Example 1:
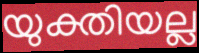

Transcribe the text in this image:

യുക്തിയല്ല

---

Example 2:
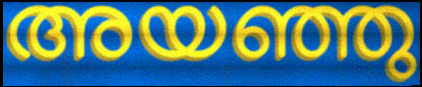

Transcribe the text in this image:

അയഞ്ഞു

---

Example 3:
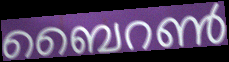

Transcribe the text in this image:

ബൈറൺ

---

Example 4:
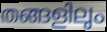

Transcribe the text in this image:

തങ്ങളിലും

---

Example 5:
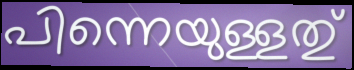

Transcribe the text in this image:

പിന്നെയുള്ളതു്